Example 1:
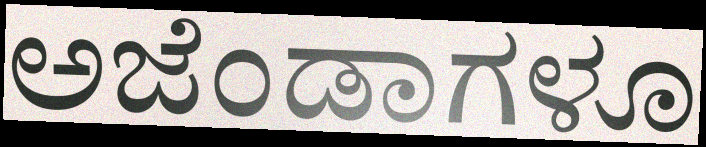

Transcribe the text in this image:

ಅಜೆಂಡಾಗಳೂ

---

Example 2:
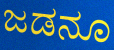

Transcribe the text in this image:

ಜಡನೂ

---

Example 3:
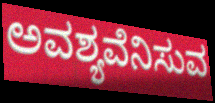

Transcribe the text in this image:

ಅವಶ್ಯವೆನಿಸುವ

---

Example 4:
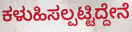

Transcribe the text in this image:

ಕಳುಹಿಸಲ್ಪಟ್ಟಿದ್ದೇನೆ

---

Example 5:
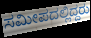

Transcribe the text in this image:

ಸಮೀಪದಲ್ಲಿದ್ದರು